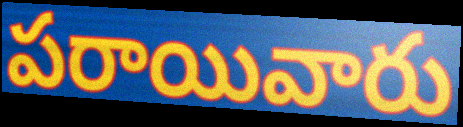
పరాయివారు